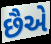
છૈએ